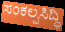
ಸಂಕಲ್ಪಸಿದ್ಧಿ